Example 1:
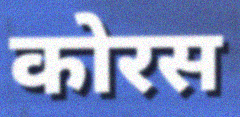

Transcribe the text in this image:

कोरस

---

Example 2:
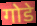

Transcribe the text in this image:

गोडे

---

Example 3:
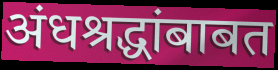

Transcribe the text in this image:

अंधश्रद्धांबाबत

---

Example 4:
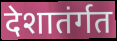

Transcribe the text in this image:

देशातंर्गत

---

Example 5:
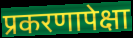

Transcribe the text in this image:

प्रकरणापेक्षा